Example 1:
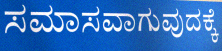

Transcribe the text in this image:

ಸಮಾಸವಾಗುವುದಕ್ಕೆ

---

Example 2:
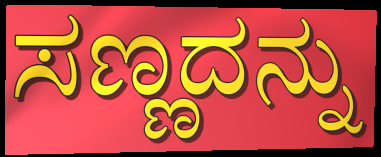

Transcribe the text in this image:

ಸಣ್ಣದನ್ನು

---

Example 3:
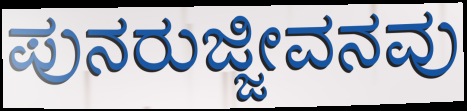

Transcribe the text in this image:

ಪುನರುಜ್ಜೀವನವು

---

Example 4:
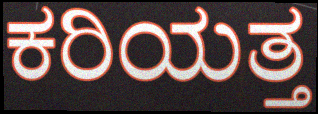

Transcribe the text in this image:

ಕರಿಯತ್ತ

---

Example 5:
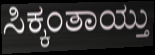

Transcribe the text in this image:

ಸಿಕ್ಕಂತಾಯ್ತು